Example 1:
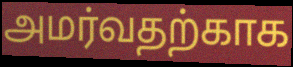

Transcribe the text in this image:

அமர்வதற்காக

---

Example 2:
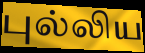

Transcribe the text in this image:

புல்லிய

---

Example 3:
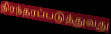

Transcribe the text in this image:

நிரந்தரப்படுத்துவது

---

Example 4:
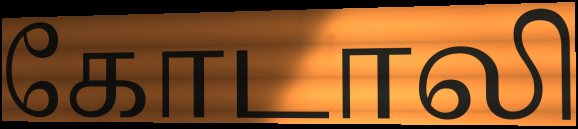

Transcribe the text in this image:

கோடாலி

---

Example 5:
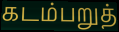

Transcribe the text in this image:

கடம்பறுத்